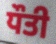
ਧੌਤੀ